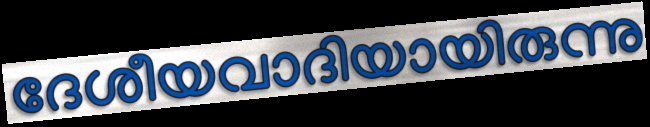
ദേശീയവാദിയായിരുന്നു